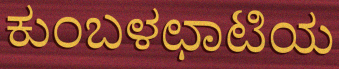
ಕುಂಬಳಛಾಟಿಯ